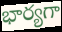
భార్యగా